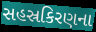
સહસ્રકિરણના